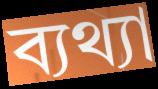
ব্যথ্যা